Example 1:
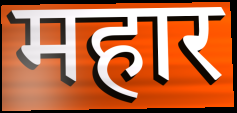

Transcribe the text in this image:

महार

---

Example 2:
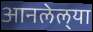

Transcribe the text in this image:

आनलेल्या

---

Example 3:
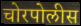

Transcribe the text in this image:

चोरपोलीस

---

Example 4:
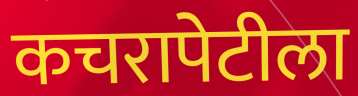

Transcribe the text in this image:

कचरापेटीला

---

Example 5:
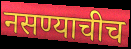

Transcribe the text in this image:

नसण्याचीच